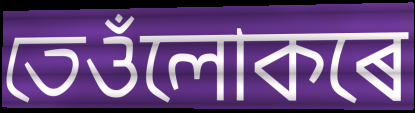
তেওঁলোকৰে